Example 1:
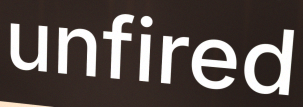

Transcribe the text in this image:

unfired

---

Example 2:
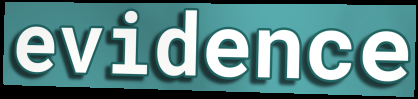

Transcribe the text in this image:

evidence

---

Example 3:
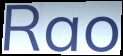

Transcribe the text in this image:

Rao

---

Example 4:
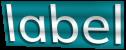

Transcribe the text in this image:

label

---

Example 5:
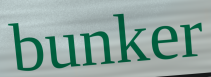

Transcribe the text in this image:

bunker